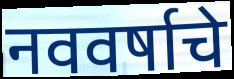
नववर्षाचे